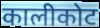
कालीकोट